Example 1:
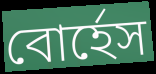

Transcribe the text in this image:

বোর্হেস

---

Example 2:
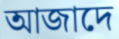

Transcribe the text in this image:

আজাদে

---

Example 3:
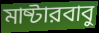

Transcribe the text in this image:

মাষ্টারবাবু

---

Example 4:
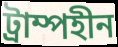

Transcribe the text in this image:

ট্রাম্পহীন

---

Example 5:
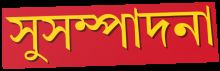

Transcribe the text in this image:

সুসম্পাদনা